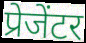
प्रेजेंटर